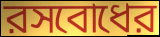
রসবোধের